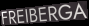
FREIBERGA